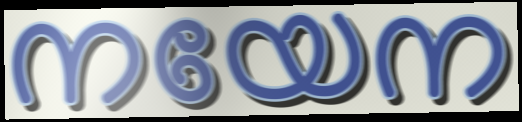
നയേന